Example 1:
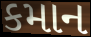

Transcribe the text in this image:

કમાન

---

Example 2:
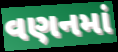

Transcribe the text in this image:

વણનમાં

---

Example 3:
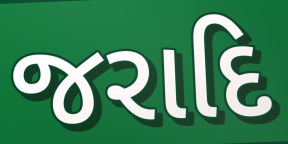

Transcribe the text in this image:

જરાદિ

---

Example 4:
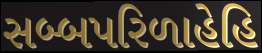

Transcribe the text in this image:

સબ્બપરિળાહેહિ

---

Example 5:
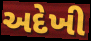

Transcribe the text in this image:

અદેખી